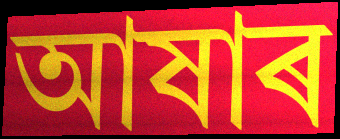
আষাৰ